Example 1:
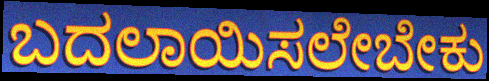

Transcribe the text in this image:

ಬದಲಾಯಿಸಲೇಬೇಕು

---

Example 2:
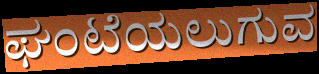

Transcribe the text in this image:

ಘಂಟೆಯಲುಗುವ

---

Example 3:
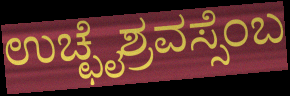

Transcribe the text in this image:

ಉಚ್ಛೈಶ್ರವಸ್ಸೆಂಬ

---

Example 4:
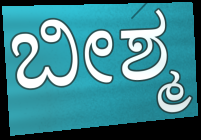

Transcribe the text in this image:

ಬೀಶ್ಮ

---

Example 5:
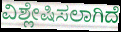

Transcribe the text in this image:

ವಿಶ್ಲೇಷಿಸಲಾಗಿದೆ